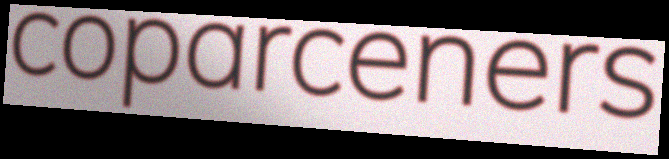
coparceners